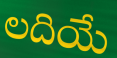
లదియే